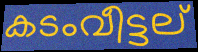
കടംവീട്ടല്